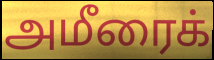
அமீரைக்